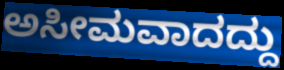
ಅಸೀಮವಾದದ್ದು